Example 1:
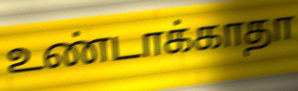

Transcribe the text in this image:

உண்டாக்காதா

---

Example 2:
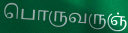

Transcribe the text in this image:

பொருவருஞ்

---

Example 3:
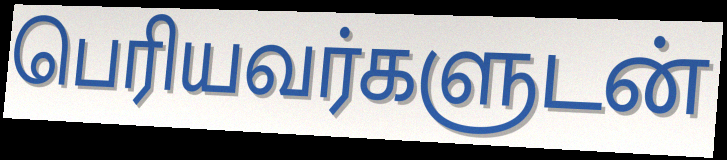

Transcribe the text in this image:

பெரியவர்களுடன்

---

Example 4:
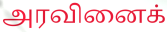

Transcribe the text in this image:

அரவினைக்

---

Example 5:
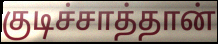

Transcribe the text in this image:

குடிச்சாத்தான்